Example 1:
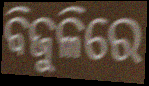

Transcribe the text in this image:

ବିଜୁଳିରେ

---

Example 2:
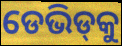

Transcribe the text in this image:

ଡେଭିଡ୍‍କୁ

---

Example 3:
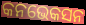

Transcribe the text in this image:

କନଭେକସନ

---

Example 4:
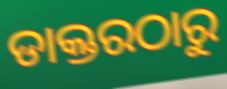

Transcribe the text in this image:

ଡାକ୍ତରଠାରୁ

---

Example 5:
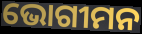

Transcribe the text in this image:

ଭୋଗୀମନ